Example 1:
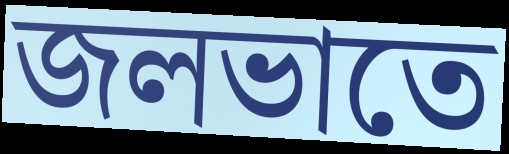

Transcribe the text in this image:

জলভাতে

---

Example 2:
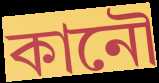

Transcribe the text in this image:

কানৌ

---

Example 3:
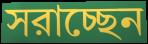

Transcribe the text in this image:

সরাচ্ছেন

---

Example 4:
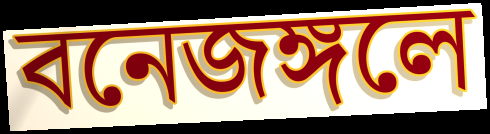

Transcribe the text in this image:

বনেজঙ্গলে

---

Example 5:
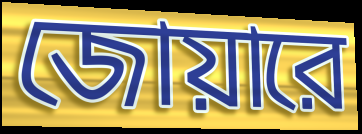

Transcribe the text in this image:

জোয়ারে